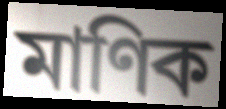
মাণিক